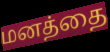
மனத்தை